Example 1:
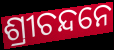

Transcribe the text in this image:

ଶ୍ରୀଚନ୍ଦନେ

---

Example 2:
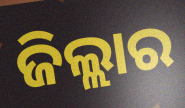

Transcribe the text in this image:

ଜିଲ୍ଲାର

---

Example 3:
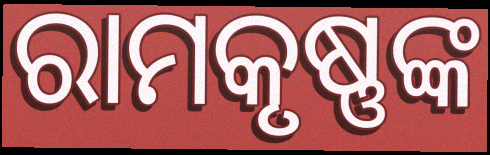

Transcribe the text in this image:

ରାମକୃଷ୍ଣଙ୍କ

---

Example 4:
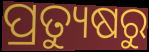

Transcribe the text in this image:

ପ୍ରତ୍ୟୁଷରୁ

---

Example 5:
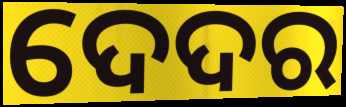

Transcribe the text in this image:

ଦେଦର